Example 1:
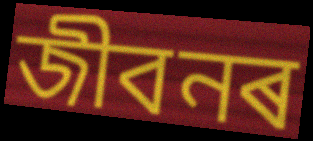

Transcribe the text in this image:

জীবনৰ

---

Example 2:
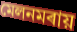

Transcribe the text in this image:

মেলনমৰায়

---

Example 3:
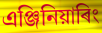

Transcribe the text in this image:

এঞ্জিনিয়াৰিং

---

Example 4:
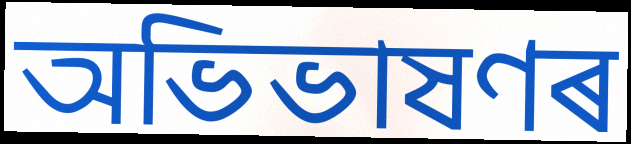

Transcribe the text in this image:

অভিভাষণৰ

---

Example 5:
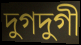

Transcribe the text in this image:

দুগদুগী